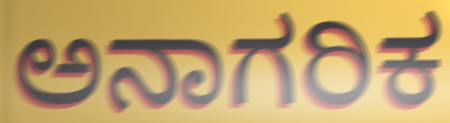
ಅನಾಗರಿಕ